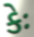
કેઃ